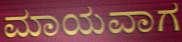
ಮಾಯವಾಗ